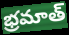
భ్రమాత్